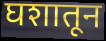
घशातून